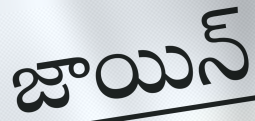
జాయిన్